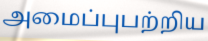
அமைப்புபற்றிய